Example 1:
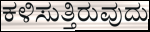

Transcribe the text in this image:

ಕಳಿಸುತ್ತಿರುವುದು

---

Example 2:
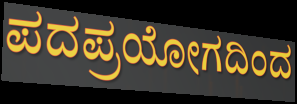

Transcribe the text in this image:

ಪದಪ್ರಯೋಗದಿಂದ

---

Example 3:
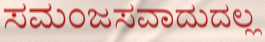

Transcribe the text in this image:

ಸಮಂಜಸವಾದುದಲ್ಲ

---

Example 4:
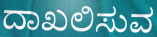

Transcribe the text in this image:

ದಾಖಲಿಸುವ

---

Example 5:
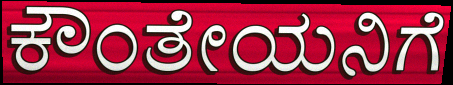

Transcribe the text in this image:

ಕೌಂತೇಯನಿಗೆ